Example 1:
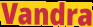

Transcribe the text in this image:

Vandra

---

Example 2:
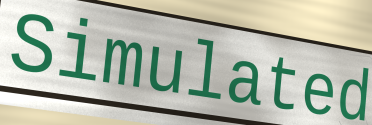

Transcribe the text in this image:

Simulated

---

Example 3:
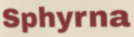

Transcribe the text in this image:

Sphyrna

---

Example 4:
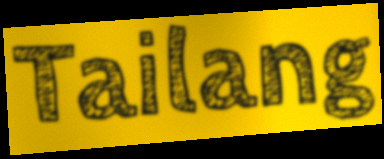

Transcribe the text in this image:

Tailang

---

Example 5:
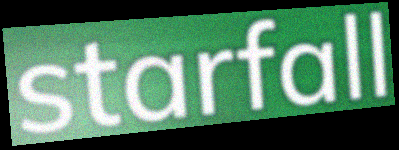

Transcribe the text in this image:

starfall